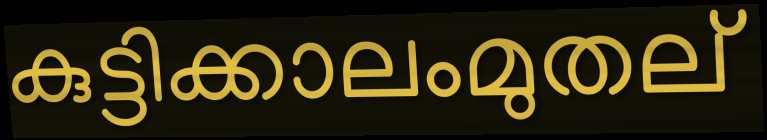
കുട്ടിക്കാലംമുതല്